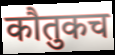
कौतुकच